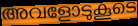
അവളോടുകൂടെ